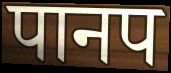
पानप